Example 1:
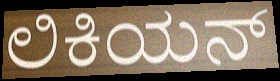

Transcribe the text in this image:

ಲಿಕಿಯನ್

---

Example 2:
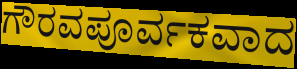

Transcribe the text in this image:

ಗೌರವಪೂರ್ವಕವಾದ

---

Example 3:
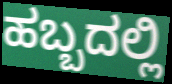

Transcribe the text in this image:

ಹಬ್ಬದಲ್ಲಿ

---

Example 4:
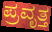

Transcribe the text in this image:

ಪ್ರವೃತ್ತ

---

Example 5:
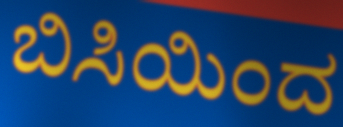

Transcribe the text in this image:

ಬಿಸಿಯಿಂದ